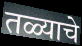
तळ्याचे